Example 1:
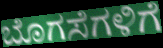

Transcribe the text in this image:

ಬೊಗಸೆಗಳಿಗೆ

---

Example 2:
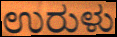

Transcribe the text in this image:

ಉರುಳು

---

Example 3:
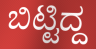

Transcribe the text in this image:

ಬಿಟ್ಟಿದ್ದ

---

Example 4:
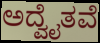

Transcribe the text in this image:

ಅದ್ವೈತವೆ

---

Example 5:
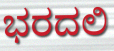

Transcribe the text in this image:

ಭರದಲಿ